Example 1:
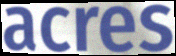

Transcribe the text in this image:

acres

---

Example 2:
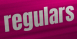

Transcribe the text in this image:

regulars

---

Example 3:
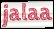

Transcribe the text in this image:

jalaa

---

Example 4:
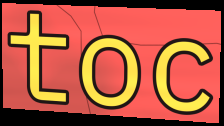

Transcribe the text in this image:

toc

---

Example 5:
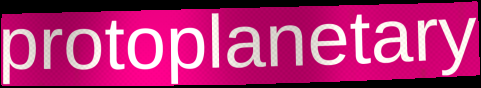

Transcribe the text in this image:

protoplanetary